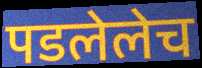
पडलेलेच